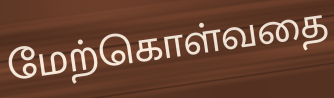
மேற்கொள்வதை